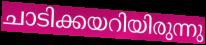
ചാടിക്കയറിയിരുന്നു